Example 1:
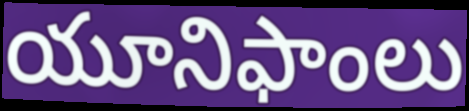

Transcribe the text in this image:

యూనిఫాంలు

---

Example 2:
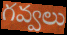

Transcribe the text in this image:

గవ్వలు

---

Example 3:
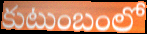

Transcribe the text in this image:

కుటుంబంలో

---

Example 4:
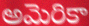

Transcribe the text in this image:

అమెరికా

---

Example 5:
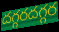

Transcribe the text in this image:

దగ్గరదగ్గర